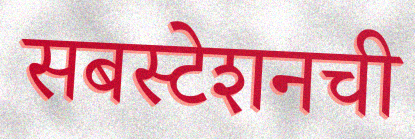
सबस्टेशनची